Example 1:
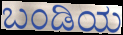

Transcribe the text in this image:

ಬಂಡಿಯ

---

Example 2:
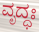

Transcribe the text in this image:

ವೃದ್ಧಃ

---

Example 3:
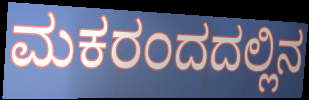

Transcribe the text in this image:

ಮಕರಂದದಲ್ಲಿನ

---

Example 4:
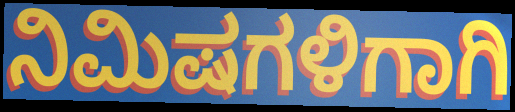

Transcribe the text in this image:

ನಿಮಿಷಗಳಿಗಾಗಿ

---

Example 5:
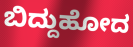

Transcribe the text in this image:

ಬಿದ್ದುಹೋದ